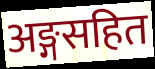
अङ्गसहित